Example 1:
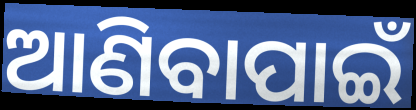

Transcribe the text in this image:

ଆଣିବାପାଇଁ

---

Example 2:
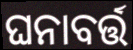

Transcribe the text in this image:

ଘନାବର୍ତ୍ତ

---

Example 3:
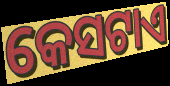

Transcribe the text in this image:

କେସଟାଏ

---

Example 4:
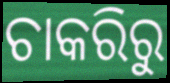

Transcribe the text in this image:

ଚାକରିରୁ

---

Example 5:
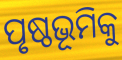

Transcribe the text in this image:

ପୃଷ୍ଠଭୂମିକୁ